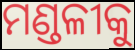
ମଣ୍ଡଳୀକୁ